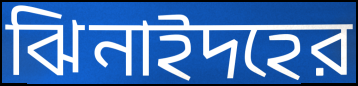
ঝিনাইদহের